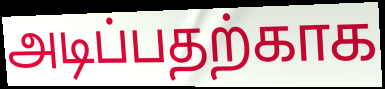
அடிப்பதற்காக